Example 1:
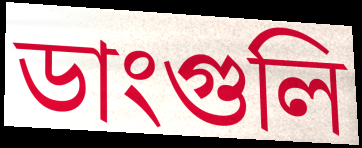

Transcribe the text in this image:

ডাংগুলি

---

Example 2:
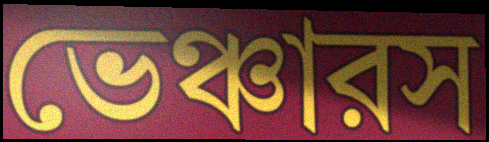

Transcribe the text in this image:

ভেঞ্চারস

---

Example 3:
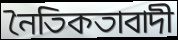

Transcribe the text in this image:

নৈতিকতাবাদী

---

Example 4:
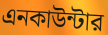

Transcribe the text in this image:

এনকাউন্টার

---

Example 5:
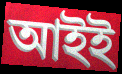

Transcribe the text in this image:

আইই